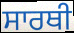
ਸਾਰਥੀ